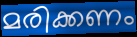
മരിക്കണം